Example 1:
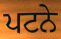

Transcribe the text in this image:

ਪਟਨੇ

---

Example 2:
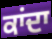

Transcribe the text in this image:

ਕਾਂਦਾ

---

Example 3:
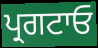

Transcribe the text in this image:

ਪ੍ਰਗਟਾਓ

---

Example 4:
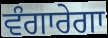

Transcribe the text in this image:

ਵੰਗਾਰੇਗਾ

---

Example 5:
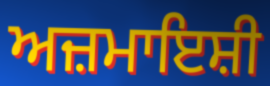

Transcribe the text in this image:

ਅਜ਼ਮਾਇਸ਼ੀ